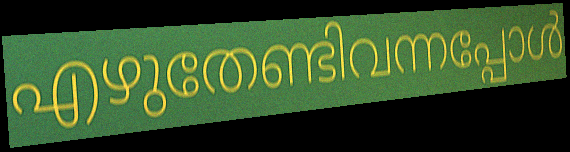
എഴുതേണ്ടിവന്നപ്പോൾ